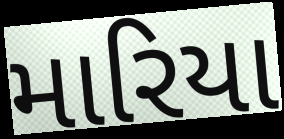
મારિયા